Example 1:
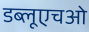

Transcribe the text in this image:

डब्लूएचओ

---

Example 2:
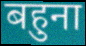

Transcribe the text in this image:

बहुना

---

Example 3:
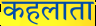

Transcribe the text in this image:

कहलाता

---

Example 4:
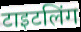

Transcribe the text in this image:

टाइटलिंग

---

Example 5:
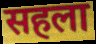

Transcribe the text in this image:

सहला